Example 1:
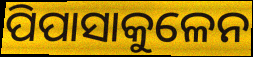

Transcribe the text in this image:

ପିପାସାକୁଳେନ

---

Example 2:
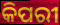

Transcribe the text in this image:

କିପରୀ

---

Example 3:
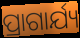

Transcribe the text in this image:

ପ୍ରାଗାର୍ଯ୍ୟ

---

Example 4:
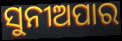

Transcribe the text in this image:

ସୁନୀଅପାର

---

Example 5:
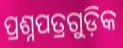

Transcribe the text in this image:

ପ୍ରଶ୍ନପତ୍ରଗୁଡ଼ିକ